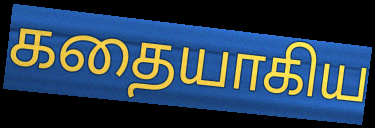
கதையாகிய